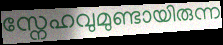
സ്നേഹവുമുണ്ടായിരുന്ന